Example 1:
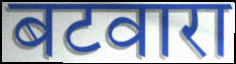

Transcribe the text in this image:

बटवारा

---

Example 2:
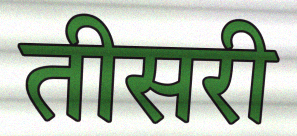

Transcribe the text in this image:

तीसरी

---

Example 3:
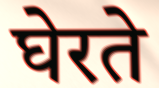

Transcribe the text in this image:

घेरते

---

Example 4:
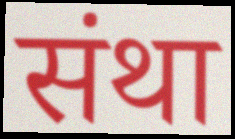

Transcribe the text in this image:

संथा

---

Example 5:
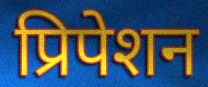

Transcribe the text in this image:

प्रिपेशन